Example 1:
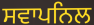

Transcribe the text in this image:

ਸਵਾਪਨਿਲ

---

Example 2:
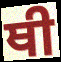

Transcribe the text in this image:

ਥੀ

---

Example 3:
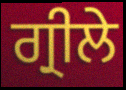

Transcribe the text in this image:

ਗ੍ਰੀਲੇ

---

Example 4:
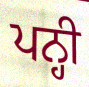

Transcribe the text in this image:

ਪਨ੍ਹੀ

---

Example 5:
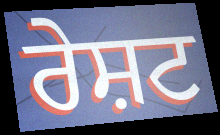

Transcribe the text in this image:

ਰੇਸ਼ਟ